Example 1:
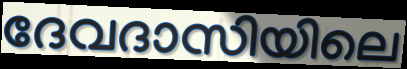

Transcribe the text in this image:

ദേവദാസിയിലെ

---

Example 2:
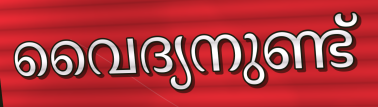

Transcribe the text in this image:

വൈദ്യനുണ്ട്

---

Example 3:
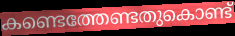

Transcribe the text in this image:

കണ്ടെത്തേണ്ടതുകൊണ്ട്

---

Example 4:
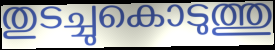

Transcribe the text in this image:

തുടച്ചുകൊടുത്തു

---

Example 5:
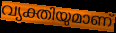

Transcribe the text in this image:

വ്യക്തിയുമാണ്